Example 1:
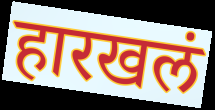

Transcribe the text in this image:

हारखलं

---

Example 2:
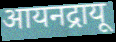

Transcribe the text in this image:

आयनद्रायू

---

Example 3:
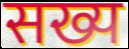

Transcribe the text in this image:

सख्य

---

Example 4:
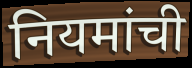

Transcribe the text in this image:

नियमांची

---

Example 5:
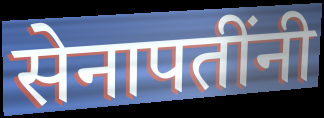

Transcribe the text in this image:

सेनापतींनी